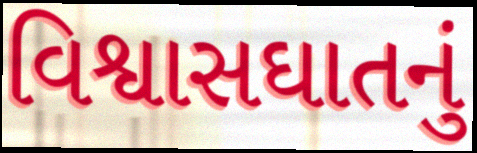
વિશ્વાસઘાતનું